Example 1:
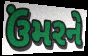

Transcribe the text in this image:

ઉંમરને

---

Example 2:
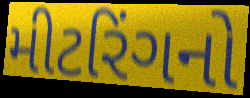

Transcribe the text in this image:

મીટરિંગનો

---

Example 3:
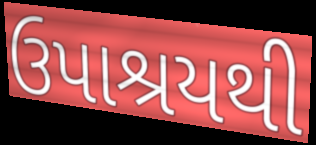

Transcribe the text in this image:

ઉપાશ્રયથી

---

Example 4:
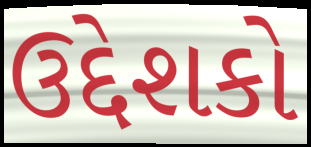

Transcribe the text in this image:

ઉદ્દેશકો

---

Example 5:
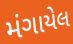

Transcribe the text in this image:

મંગાયેલ